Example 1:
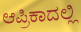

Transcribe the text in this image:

ಆಪ್ರಿಕಾದಲ್ಲಿ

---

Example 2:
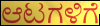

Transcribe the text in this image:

ಆಟಗಳಿಗೆ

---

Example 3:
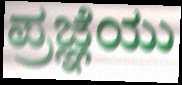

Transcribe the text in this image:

ಪ್ರಜ್ಞೆಯು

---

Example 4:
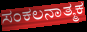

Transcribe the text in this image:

ಸಂಕಲನಾತ್ಮಕ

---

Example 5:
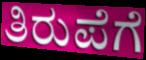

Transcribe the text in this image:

ತಿರುಪೆಗೆ